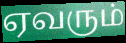
ஏவரும்